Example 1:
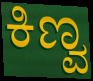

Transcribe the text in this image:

ಕಿಣ್ವ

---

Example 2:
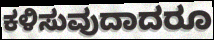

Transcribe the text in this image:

ಕಳಿಸುವುದಾದರೂ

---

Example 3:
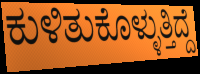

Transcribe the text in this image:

ಕುಳಿತುಕೊಳ್ಳುತ್ತಿದ್ದೆ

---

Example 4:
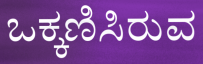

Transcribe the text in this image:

ಒಕ್ಕಣಿಸಿರುವ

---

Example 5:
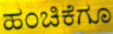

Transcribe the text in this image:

ಹಂಚಿಕೆಗೂ